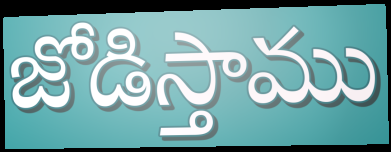
జోడిస్తాము